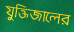
যুক্তিজালের